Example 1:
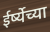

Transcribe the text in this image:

ईर्ष्येच्या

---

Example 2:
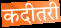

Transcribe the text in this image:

कदीतरी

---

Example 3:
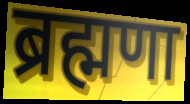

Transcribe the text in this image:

ब्रह्मणा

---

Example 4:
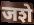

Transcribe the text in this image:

जशे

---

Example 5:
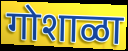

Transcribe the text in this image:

गोशाळा